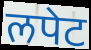
लपेट